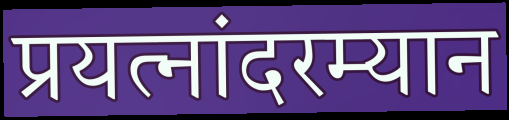
प्रयत्नांदरम्यान